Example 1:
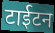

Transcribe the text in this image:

टाईटन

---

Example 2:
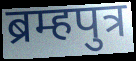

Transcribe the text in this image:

ब्रम्हपुत्र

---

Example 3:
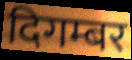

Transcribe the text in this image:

दिगम्बर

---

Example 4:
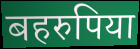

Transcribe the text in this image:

बहरुपिया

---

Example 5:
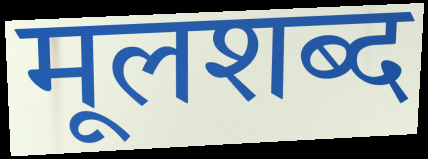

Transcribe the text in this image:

मूलशब्द